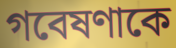
গবেষণাকে